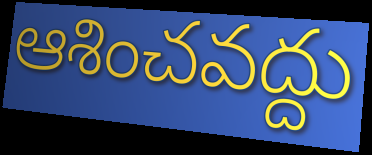
ఆశించవద్దు